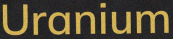
Uranium